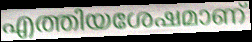
എത്തിയശേഷമാണ്